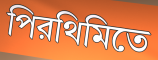
পিরথিমিতে